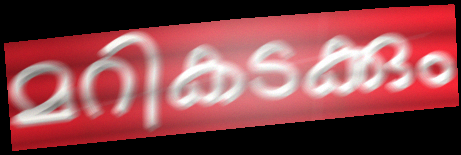
മറികടക്കും